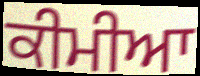
ਕੀਮੀਆ